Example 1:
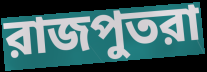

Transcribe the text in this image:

রাজপুতরা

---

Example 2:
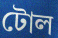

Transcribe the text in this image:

টোল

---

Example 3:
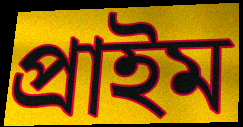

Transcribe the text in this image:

প্রাইম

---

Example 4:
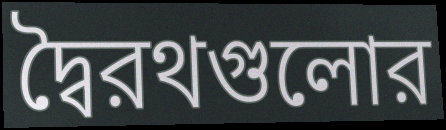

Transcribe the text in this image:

দ্বৈরথগুলোর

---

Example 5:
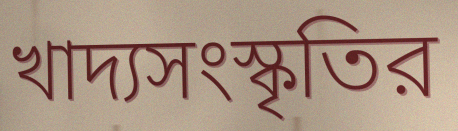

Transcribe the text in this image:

খাদ্যসংস্কৃতির